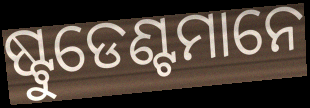
ଷ୍ଟୁଡେଣ୍ଟମାନେ